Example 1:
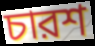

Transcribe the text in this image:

চারশ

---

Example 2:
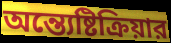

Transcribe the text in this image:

অন্ত্যেষ্টিক্রিয়ার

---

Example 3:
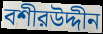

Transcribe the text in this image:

বশীরউদ্দীন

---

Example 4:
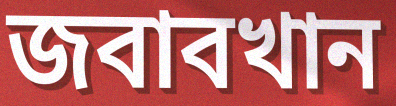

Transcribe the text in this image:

জবাবখান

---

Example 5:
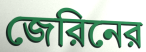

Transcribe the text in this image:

জেরিনের